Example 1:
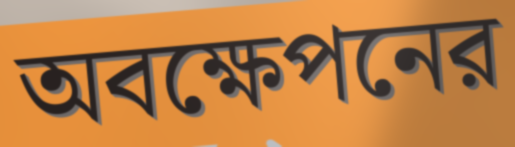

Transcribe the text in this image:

অবক্ষেপনের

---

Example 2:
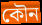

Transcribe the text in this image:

কৌন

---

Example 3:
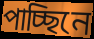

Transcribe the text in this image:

পাচ্ছিনে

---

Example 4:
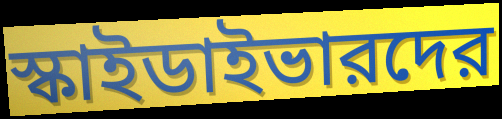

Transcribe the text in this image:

স্কাইডাইভারদের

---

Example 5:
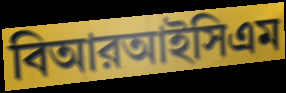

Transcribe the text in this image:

বিআরআইসিএম